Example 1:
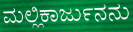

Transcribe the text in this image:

ಮಲ್ಲಿಕಾರ್ಜುನನು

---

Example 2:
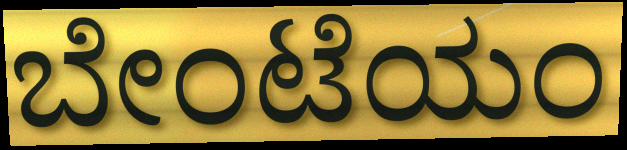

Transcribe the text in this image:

ಬೇಂಟೆಯಂ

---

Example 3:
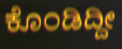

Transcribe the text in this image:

ಕೊಂಡಿದ್ದೀ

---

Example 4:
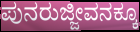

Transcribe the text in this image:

ಪುನರುಜ್ಜೀವನಕ್ಕೂ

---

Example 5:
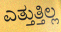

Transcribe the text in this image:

ಎತ್ತುತ್ತಿಲ್ಲ